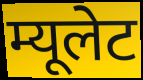
म्यूलेट